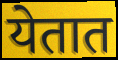
येतात